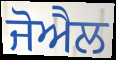
ਜੋਐਲ